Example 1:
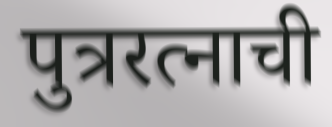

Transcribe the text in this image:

पुत्ररत्नाची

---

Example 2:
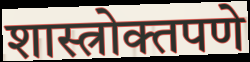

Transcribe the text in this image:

शास्त्रोक्तपणे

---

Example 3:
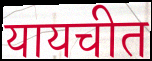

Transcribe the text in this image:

यायचीत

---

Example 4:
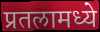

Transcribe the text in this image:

प्रतलामध्ये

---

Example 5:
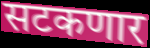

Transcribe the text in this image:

सटकणार